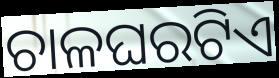
ଚାଳଘରଟିଏ